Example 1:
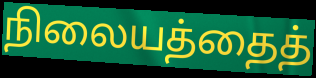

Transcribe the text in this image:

நிலையத்தைத்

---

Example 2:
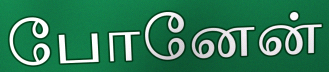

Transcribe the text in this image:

போனேன்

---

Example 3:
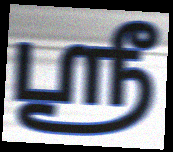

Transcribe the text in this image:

ஸ்ரீ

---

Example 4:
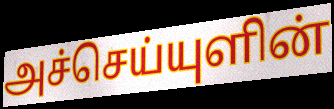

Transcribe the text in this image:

அச்செய்யுளின்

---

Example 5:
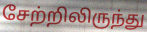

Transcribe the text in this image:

சேற்றிலிருந்து